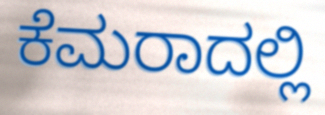
ಕೆಮರಾದಲ್ಲಿ